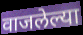
वाजलेल्या